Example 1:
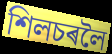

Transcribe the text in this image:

শিলচৰলৈ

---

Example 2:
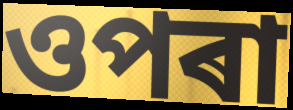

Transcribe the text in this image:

ওপৰা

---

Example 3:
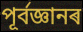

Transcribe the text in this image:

পূৰ্বজ্ঞানৰ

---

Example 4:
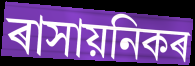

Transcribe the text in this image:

ৰাসায়নিকৰ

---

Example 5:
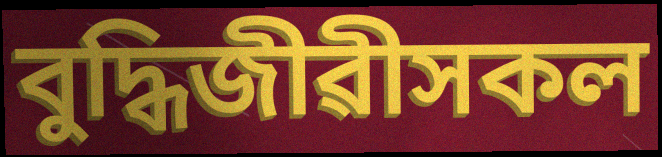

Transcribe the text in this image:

বুদ্ধিজীৱীসকল